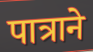
पात्राने